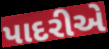
પાદરીએ